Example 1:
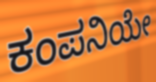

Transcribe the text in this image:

ಕಂಪನಿಯೇ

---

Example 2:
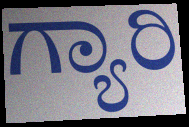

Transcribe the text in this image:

ಗ್ಯಾರಿ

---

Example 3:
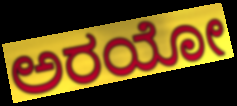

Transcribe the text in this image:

ಅರಯೋ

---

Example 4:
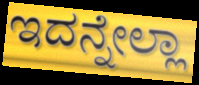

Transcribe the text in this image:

ಇದನ್ನೇಲ್ಲಾ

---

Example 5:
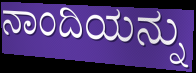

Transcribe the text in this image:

ನಾಂದಿಯನ್ನು